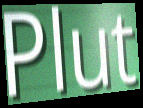
Plut